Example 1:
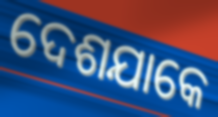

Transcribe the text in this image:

ଦେଶଯାକେ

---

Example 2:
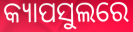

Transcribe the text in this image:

କ୍ୟାପସୁଲରେ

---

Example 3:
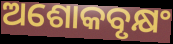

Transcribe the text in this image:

ଅଶୋକବୃକ୍ଷଂ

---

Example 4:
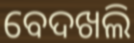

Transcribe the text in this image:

ବେଦଖଲି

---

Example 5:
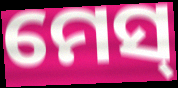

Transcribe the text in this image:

ମେସ୍